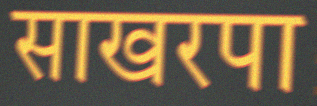
साखरपा